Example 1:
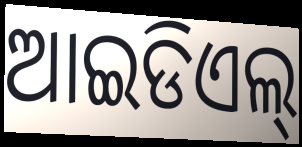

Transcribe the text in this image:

ଆଇଡିଏଲ୍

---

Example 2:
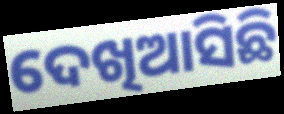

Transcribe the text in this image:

ଦେଖିଆସିଛି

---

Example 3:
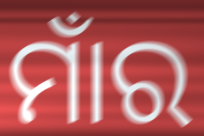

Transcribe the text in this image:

ମାଁର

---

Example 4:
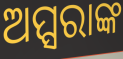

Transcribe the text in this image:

ଅପ୍ସରାଙ୍କ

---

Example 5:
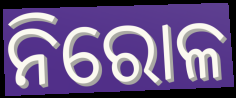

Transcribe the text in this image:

ନିରୋଳ